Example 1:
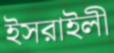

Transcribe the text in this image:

ইসরাইলী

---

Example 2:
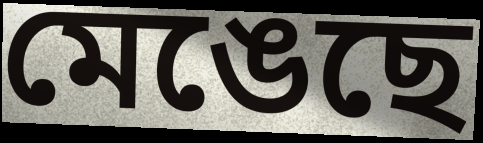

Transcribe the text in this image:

মেঙেছে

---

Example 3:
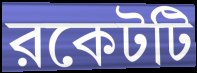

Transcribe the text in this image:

রকেটটি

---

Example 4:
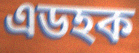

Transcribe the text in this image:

এডহক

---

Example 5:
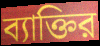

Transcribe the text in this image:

ব্যাক্তির